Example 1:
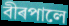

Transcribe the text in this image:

বীৰপালে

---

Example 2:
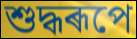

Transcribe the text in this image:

শুদ্ধৰূপে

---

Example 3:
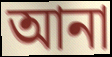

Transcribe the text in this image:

আনা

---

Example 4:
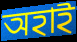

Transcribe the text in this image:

অহাই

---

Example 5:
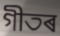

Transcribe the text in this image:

গীতৰ